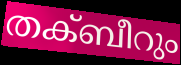
തക്ബീറും